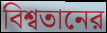
বিশ্বতানের